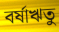
বর্ষাঋতু